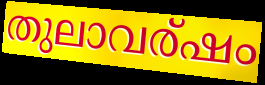
തുലാവര്ഷം